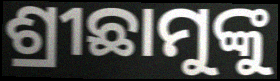
ଶ୍ରୀଛାମୁଙ୍କୁ